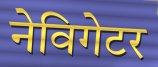
नेविगेटर